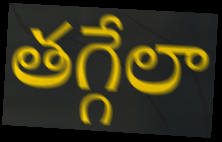
తగ్గేలా